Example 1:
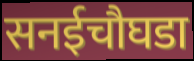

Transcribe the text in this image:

सनईचौघडा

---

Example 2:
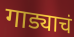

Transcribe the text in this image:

गाड्याचं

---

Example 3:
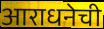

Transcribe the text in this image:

आराधनेची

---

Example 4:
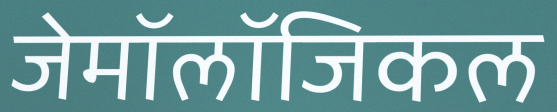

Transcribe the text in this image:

जेमॉलॉजिकल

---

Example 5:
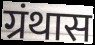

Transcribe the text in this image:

ग्रंथास